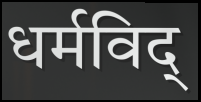
धर्मविद्